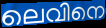
ലെവിനെ